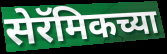
सेरॅमिकच्या